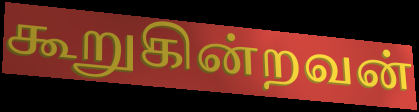
கூறுகின்றவன்